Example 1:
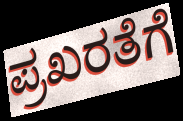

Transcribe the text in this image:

ಪ್ರಖರತೆಗೆ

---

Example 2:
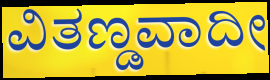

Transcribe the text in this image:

ವಿತಣ್ಡವಾದೀ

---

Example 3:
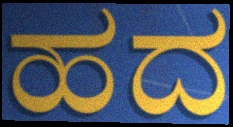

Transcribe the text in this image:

ಹದ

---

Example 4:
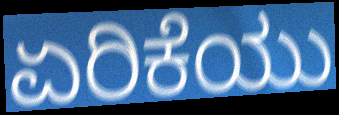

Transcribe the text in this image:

ಏರಿಕೆಯು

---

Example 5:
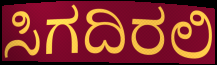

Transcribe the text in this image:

ಸಿಗದಿರಲಿ